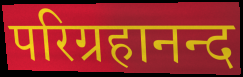
परिग्रहानन्द